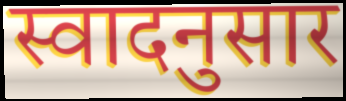
स्वादनुसार